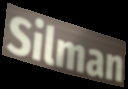
Silman